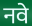
नवे